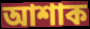
আশাক